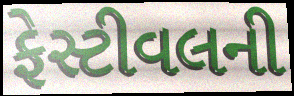
ફેસ્ટીવલની